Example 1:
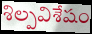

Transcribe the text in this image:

శిల్పవిశేషం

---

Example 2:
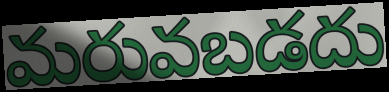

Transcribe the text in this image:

మరువబడదు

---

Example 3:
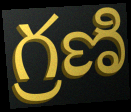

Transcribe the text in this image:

గ్రణి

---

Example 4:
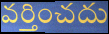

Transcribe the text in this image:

వర్తించదు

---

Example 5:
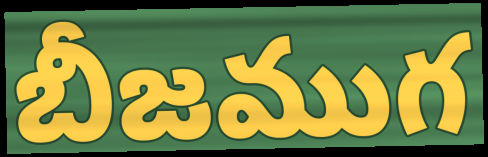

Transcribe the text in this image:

బీజముగ